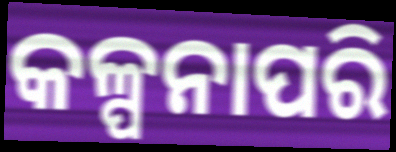
କଳ୍ପନାପରି